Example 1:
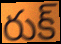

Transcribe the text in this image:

రుక్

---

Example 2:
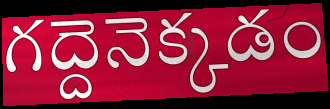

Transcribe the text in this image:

గద్దెనెక్కడం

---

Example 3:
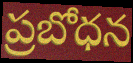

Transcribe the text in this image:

ప్రబోధన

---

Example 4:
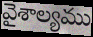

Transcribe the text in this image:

వైశాల్యము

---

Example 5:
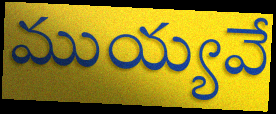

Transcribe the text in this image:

ముయ్యవే